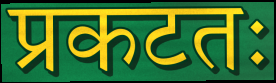
प्रकटतः